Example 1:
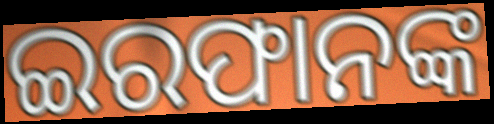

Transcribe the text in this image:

ଇରଫାନଙ୍କ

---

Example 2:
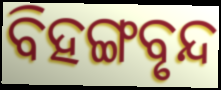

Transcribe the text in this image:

ବିହଙ୍ଗବୃନ୍ଦ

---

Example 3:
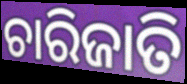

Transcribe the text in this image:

ଚାରିଜାତି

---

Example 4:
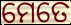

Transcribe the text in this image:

ମେତେ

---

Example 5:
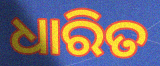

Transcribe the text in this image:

ଧାରିତ